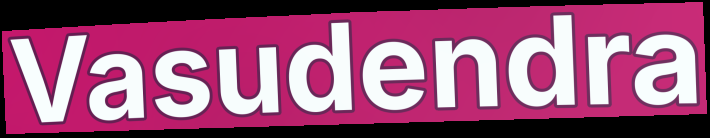
Vasudendra